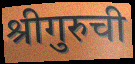
श्रीगुरुची